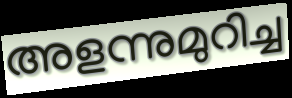
അളന്നുമുറിച്ച